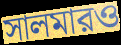
সালমারও